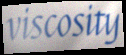
viscosity